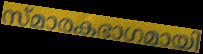
സ്മാരകഭാഗമായി